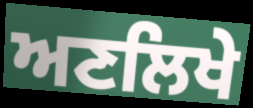
ਅਣਲਿਖੇ